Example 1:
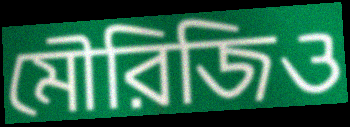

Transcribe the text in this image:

মৌরিজিও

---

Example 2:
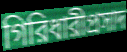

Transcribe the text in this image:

গিরিধারীপ্রসাদ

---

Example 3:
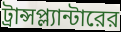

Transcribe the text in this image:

ট্রান্সপ্ল্যান্টারের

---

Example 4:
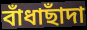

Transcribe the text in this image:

বাঁধাছাঁদা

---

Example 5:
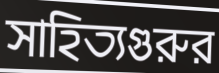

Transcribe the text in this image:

সাহিত্যগুরুর